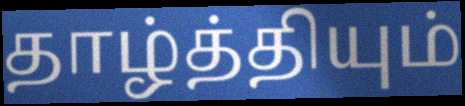
தாழ்த்தியும்